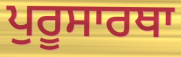
ਪੁਰੂਸਾਰਥਾ